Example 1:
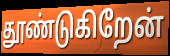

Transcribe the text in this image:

தூண்டுகிறேன்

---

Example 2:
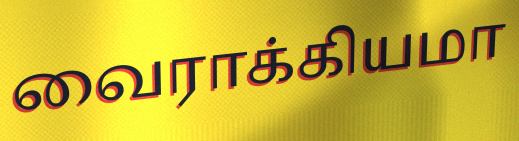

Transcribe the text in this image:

வைராக்கியமா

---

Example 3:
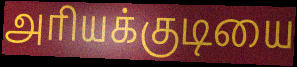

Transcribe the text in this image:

அரியக்குடியை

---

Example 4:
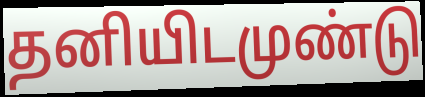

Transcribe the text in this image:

தனியிடமுண்டு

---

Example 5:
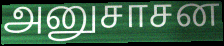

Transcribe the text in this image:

அனுசாசன